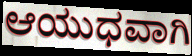
ಆಯುಧವಾಗಿ